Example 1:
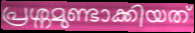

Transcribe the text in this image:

പ്രശ്നമുണ്ടാക്കിയത്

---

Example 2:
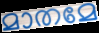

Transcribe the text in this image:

മാതമേ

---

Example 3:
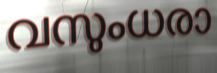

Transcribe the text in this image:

വസുംധരാ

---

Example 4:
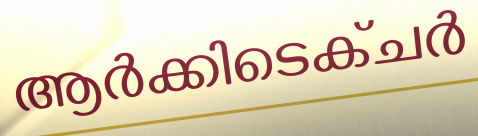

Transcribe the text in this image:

ആർക്കിടെക്ചർ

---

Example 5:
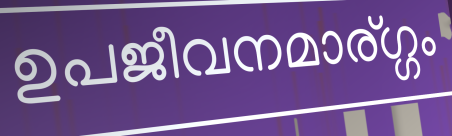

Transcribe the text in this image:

ഉപജീവനമാര്ഗ്ഗം